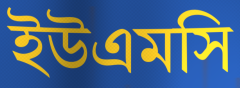
ইউএমসি